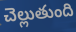
చెల్లుతుంది